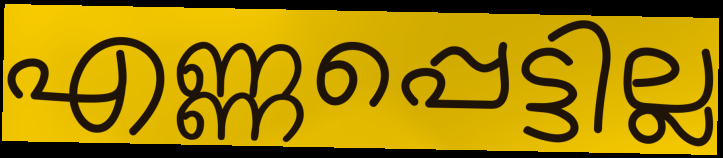
എണ്ണപ്പെട്ടില്ല